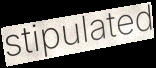
stipulated